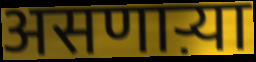
असणाऱ्‍या